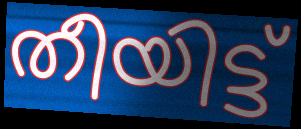
തീയിട്ട്